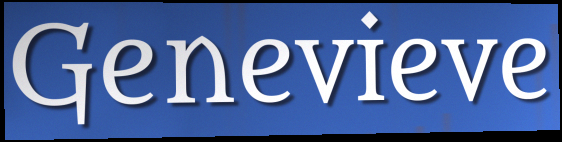
Genevieve